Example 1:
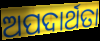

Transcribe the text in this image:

ଅପଦାର୍ଥତା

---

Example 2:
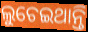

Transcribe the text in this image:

ଲୁଚେଇଥାନ୍ତି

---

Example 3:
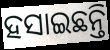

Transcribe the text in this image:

ହସାଇଛନ୍ତି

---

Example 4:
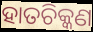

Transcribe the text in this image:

ହାତଚିକ୍କଣ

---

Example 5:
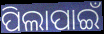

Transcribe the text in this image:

ପିଲାପାଇଁ